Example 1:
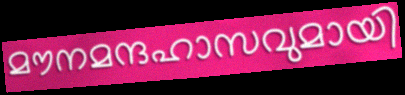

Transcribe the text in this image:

മൗനമന്ദഹാസവുമായി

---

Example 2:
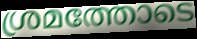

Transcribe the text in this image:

ശ്രമത്തോടെ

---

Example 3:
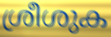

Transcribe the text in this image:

ശ്രീശുക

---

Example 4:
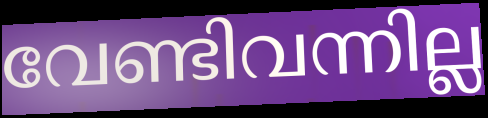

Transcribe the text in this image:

വേണ്ടിവന്നില്ല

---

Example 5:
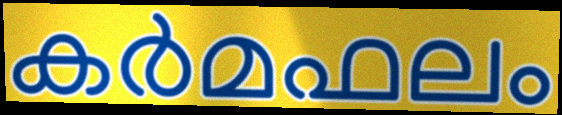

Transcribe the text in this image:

കർമഫലം